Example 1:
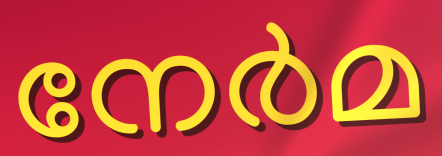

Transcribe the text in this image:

നേർമ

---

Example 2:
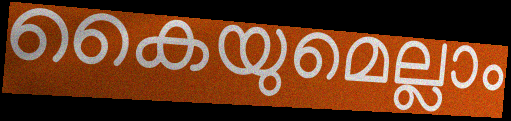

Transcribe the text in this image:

കൈയുമെല്ലാം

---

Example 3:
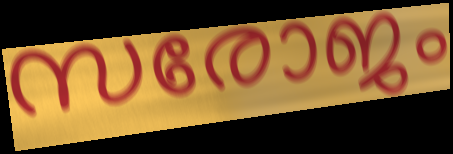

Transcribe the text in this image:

സരോജം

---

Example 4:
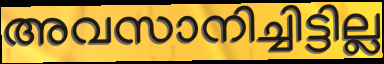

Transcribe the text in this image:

അവസാനിച്ചിട്ടില്ല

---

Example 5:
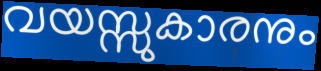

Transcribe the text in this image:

വയസ്സുകാരനും